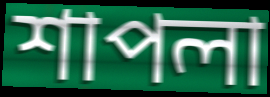
শাপলা